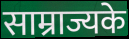
साम्राज्यके